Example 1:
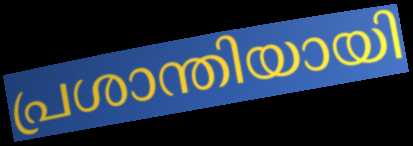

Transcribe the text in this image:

പ്രശാന്തിയായി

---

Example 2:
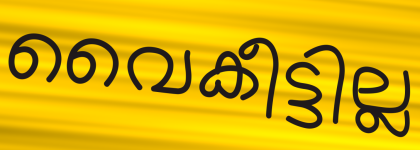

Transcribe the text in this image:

വൈകീട്ടില്ല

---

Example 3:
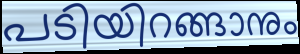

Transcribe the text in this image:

പടിയിറങ്ങാനും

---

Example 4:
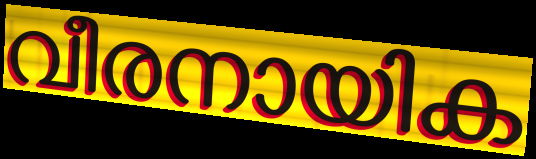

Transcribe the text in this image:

വീരനായിക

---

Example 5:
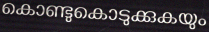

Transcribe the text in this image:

കൊണ്ടുകൊടുക്കുകയും